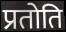
प्रतोति